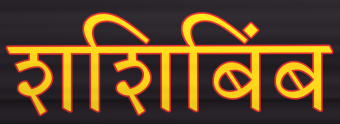
शशिबिंब